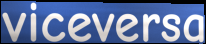
viceversa